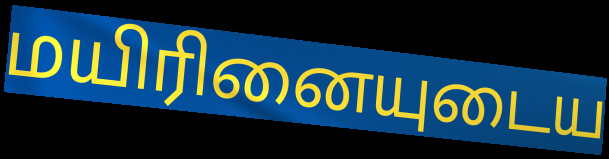
மயிரினையுடைய